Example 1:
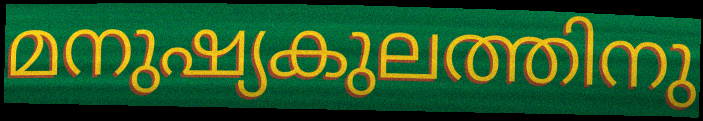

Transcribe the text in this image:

മനുഷ്യകുലത്തിനു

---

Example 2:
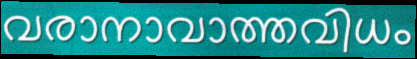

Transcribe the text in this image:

വരാനാവാത്തവിധം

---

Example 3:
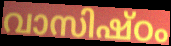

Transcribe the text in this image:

വാസിഷ്ഠം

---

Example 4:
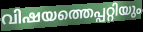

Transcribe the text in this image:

വിഷയത്തെപ്പറ്റിയും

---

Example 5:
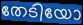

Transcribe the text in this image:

തേടിയോ